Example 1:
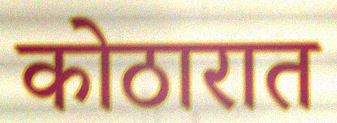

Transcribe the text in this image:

कोठारात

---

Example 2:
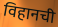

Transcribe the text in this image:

विहानची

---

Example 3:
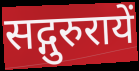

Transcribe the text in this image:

सद्गुरुरायें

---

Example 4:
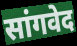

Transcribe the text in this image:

सांगवेद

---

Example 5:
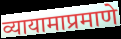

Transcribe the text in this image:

व्यायामाप्रमाणे